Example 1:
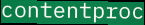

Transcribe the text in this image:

contentproc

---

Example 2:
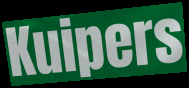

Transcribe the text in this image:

Kuipers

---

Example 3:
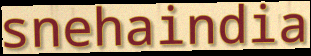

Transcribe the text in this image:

snehaindia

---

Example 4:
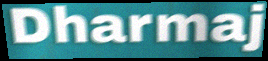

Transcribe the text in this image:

Dharmaj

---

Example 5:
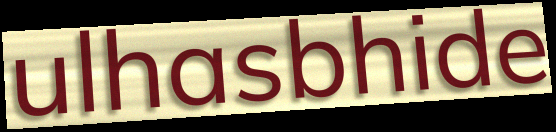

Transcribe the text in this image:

ulhasbhide